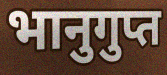
भानुगुप्त